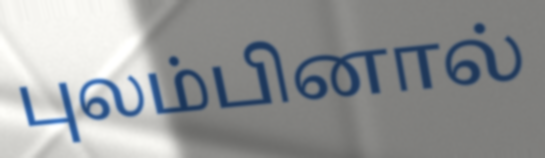
புலம்பினால்